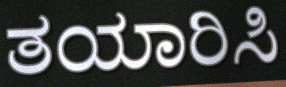
ತಯಾರಿಸಿ